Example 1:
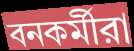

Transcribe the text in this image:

বনকর্মীরা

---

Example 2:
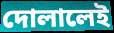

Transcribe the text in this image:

দোলালেই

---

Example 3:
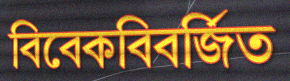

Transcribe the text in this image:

বিবেকবিবর্জিত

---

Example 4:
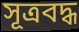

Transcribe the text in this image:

সূত্রবদ্ধ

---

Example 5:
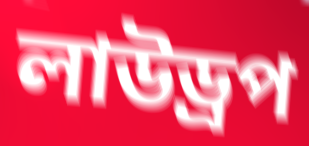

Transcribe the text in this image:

লাউড্রপ